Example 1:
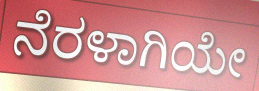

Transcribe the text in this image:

ನೆರಳಾಗಿಯೇ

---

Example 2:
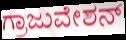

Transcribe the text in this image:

ಗ್ರಾಜುವೇಶನ್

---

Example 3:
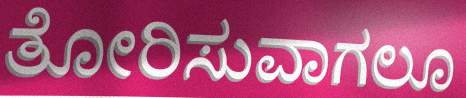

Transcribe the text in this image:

ತೋರಿಸುವಾಗಲೂ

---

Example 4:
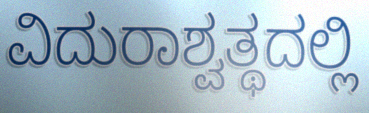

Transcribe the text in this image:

ವಿದುರಾಶ್ವತ್ಥದಲ್ಲಿ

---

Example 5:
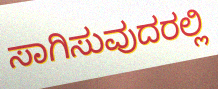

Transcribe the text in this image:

ಸಾಗಿಸುವುದರಲ್ಲಿ